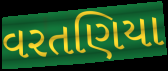
વરતણિયા